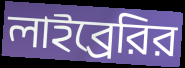
লাইব্রেরির